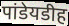
पांडेयडीह